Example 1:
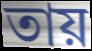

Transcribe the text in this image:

তায়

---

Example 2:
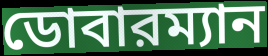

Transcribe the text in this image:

ডোবারম্যান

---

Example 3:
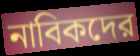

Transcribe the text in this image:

নাবিকদের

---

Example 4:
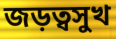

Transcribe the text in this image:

জড়ত্বসুখ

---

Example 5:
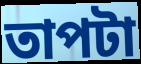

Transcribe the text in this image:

তাপটা